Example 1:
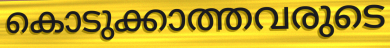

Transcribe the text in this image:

കൊടുക്കാത്തവരുടെ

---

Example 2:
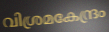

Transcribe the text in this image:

വിശ്രമകേന്ദ്രം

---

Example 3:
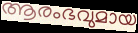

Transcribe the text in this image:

ആരംഭവുമായ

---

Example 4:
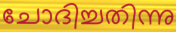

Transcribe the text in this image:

ചോദിച്ചതിന്നു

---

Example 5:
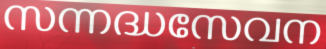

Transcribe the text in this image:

സന്നദ്ധസേവന